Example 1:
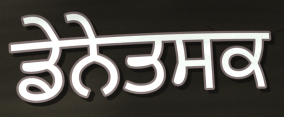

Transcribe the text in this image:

ਡੇਨੇਤਸਕ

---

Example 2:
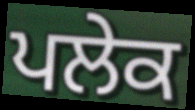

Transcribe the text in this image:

ਪਲੇਕ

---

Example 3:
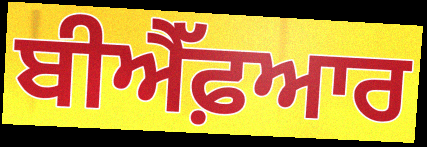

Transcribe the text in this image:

ਬੀਐੱਫ਼ਆਰ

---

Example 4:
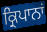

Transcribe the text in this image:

ਕ੍ਰਿਪਾਨਾਂ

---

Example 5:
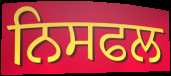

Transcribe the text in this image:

ਨਿਸਫਲ